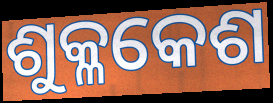
ଶୁକ୍ଳକେଶ